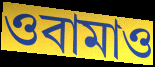
ওবামাও